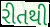
રીતથી